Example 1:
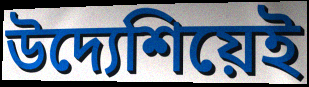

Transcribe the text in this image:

উদ্যেশিয়েই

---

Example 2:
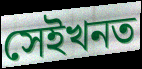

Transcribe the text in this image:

সেইখনত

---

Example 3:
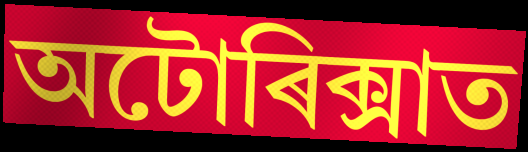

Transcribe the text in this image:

অটোৰিক্সাত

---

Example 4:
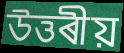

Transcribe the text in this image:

উত্তৰীয়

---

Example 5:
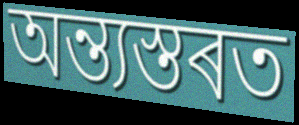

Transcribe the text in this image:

অন্ত্যস্তৰত